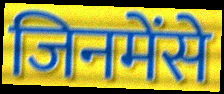
जिनमेंसे